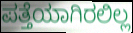
ಪತ್ತೆಯಾಗಿರಲಿಲ್ಲ